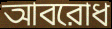
আবরোধ